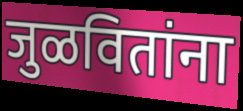
जुळवितांना